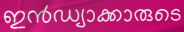
ഇൻഡ്യാക്കാരുടെ